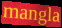
mangla